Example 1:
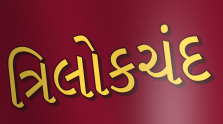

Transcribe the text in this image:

ત્રિલોકચંદ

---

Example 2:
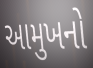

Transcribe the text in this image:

આમુખનો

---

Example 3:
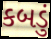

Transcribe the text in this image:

કબડું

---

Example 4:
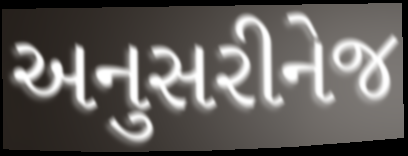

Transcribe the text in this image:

અનુસરીનેજ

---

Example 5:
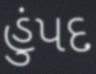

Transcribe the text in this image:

હુંપદ